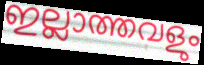
ഇല്ലാത്തവളും